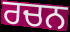
ਰਚਨ